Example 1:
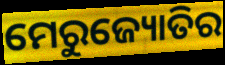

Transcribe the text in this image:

ମେରୁଜ୍ୟୋତିର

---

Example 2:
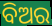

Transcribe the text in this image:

ବିଅର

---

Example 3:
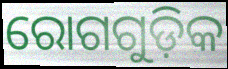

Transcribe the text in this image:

ରୋଗଗୁଡ଼ିକ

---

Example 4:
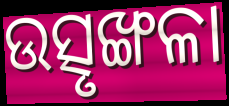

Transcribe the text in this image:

ଉତ୍ସୃଙ୍ଖଳା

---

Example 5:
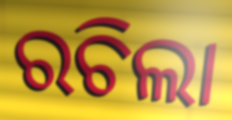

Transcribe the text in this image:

ରଚିଲା